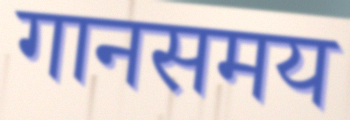
गानसमय